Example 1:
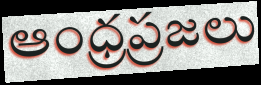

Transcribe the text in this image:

ఆంధ్రప్రజలు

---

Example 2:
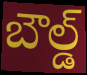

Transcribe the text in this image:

బౌల్డ్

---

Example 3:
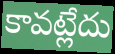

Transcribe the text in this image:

కావట్లేదు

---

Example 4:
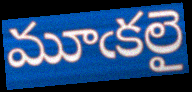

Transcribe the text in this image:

మూఁకలై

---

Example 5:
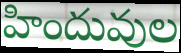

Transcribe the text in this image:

హిందువుల